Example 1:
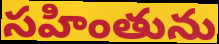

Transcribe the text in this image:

సహింతును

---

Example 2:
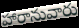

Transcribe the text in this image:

హారానువారు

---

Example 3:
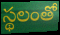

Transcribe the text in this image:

స్థలంతో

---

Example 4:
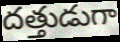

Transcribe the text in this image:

దత్తుడుగా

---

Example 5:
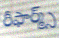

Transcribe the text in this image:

రీఫార్మ్స్